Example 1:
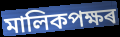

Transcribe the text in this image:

মালিকপক্ষৰ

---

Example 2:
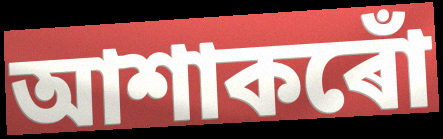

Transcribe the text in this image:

আশাকৰোঁ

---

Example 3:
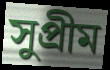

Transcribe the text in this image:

সুপ্ৰীম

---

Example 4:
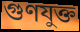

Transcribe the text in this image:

গুণযুক্ত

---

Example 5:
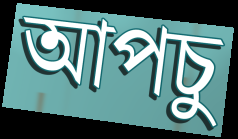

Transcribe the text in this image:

আপচু